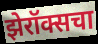
झेरॉक्सचा